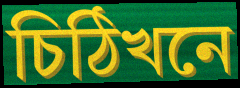
চিঠিখনে